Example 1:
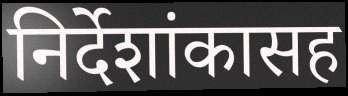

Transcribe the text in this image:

निर्देशांकासह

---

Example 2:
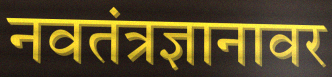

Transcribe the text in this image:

नवतंत्रज्ञानावर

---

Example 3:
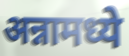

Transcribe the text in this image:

अन्नामध्ये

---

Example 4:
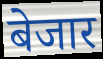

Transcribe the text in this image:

बेजार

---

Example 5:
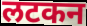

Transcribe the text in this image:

लटकन